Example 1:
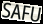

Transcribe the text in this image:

SAFU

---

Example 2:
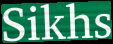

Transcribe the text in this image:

Sikhs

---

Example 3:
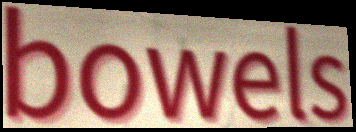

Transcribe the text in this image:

bowels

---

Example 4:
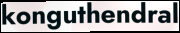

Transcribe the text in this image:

konguthendral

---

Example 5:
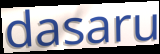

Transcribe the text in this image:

dasaru